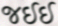
જઈઈ